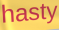
hasty